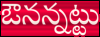
ఔనన్నట్టు